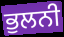
ਭੁਲਨੀ